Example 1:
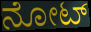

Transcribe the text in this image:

ನೋಟ್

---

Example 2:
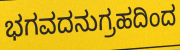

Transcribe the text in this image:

ಭಗವದನುಗ್ರಹದಿಂದ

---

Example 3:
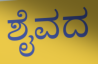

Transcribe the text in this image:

ಶೈವದ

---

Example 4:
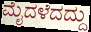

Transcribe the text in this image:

ಮೈದಳೆದದ್ದು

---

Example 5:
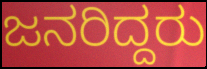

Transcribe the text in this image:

ಜನರಿದ್ದರು